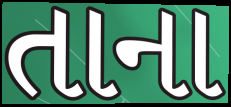
તાના